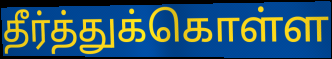
தீர்த்துக்கொள்ள